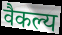
वैकल्य